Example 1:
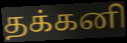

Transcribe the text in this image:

தக்கனி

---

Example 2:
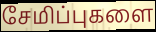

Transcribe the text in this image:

சேமிப்புகளை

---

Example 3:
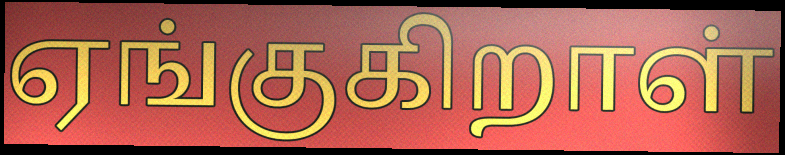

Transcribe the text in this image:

ஏங்குகிறாள்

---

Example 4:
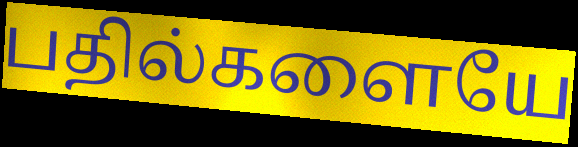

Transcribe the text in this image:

பதில்களையே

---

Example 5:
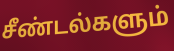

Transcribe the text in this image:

சீண்டல்களும்